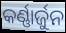
କର୍ଣ୍ଣାର୍ଜୁନ